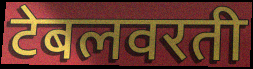
टेबलवरती